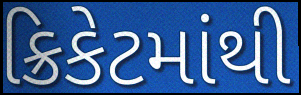
ક્રિકેટમાંથી